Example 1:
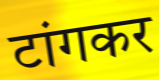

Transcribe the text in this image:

टांगकर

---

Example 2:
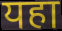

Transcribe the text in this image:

यहा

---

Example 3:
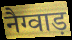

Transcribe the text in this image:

नैग्वाड़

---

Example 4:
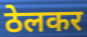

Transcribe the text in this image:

ठेलकर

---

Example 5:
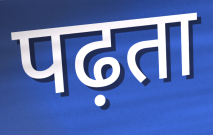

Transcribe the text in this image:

पढ़ता